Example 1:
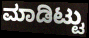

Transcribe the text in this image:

ಮಾಡಿಟ್ಟು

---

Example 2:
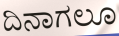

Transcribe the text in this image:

ದಿನಾಗಲೂ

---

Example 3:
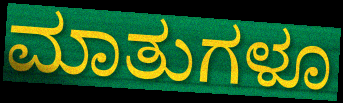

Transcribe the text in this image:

ಮಾತುಗಳೂ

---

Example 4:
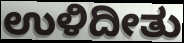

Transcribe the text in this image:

ಉಳಿದೀತು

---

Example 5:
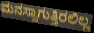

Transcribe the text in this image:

ಮನಸ್ಸಾಗುತ್ತಿರಲಿಲ್ಲ